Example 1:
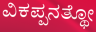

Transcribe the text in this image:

ವಿಕಪ್ಪನತ್ಥೋ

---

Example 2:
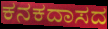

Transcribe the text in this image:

ಕನಕದಾಸದ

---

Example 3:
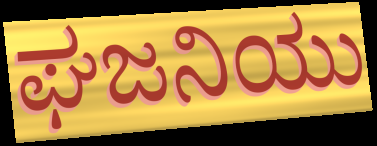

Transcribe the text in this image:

ಘಜನಿಯು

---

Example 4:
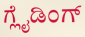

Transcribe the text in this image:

ಗ್ಲೈಡಿಂಗ್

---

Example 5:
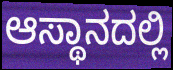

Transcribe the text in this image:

ಆಸ್ಥಾನದಲ್ಲಿ